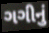
ગગીનું